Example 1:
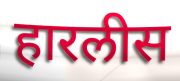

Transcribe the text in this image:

हारलीस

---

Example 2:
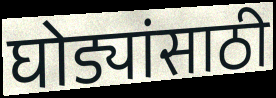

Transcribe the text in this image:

घोड्यांसाठी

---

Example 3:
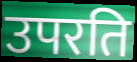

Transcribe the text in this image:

उपरति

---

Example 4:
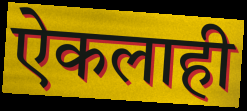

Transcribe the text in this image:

ऐकलाही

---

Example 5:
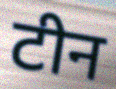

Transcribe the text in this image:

टीन